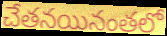
చేతనయినంతలో